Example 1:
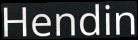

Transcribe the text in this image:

Hendin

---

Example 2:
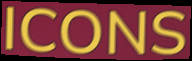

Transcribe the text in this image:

ICONS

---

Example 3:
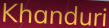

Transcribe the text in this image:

Khanduri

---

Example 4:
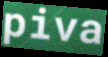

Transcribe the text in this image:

piva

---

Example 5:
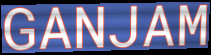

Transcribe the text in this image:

GANJAM